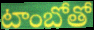
టాంబోతో